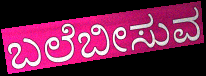
ಬಲೆಬೀಸುವ